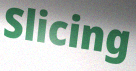
Slicing